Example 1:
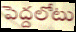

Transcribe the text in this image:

పెద్దలోటు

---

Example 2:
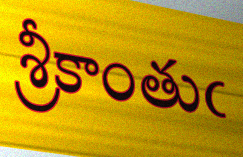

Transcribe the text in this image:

శ్రీకాంతుఁ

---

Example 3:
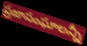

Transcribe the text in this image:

ప్రజాసంఘాలన్నీ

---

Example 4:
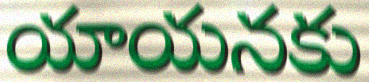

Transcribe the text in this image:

యాయనకు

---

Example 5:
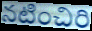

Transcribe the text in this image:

నటించిరి